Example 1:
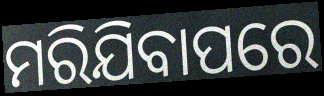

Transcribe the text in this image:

ମରିଯିବାପରେ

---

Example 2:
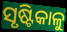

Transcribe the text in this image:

ସୃଷ୍ଟିକାଳୁ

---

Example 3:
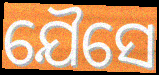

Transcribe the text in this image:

ଯୈସେ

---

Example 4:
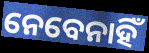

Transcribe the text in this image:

ନେବେନାହିଁ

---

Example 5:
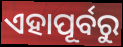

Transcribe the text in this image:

ଏହାପୂର୍ବରୁ